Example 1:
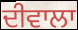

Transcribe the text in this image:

ਦੀਵਾਲਾ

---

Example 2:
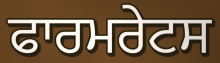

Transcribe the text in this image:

ਫਾਰਮਰੇਟਸ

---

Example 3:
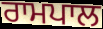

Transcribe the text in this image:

ਰਾਮਪਾਲ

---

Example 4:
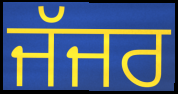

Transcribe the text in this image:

ਜੱਜਰ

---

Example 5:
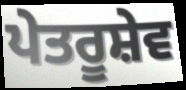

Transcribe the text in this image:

ਪੇਤਰੂਸ਼ੇਵ